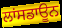
ਲਾਂਸਡਾਊਨ